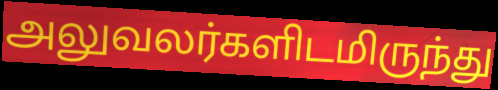
அலுவலர்களிடமிருந்து